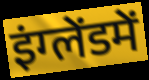
इंग्लेंडमें